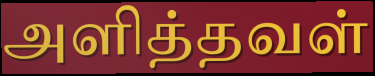
அளித்தவள்